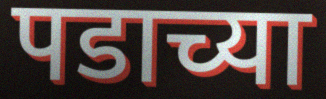
पडाच्या